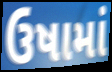
ઉષામાં